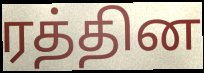
ரத்தின